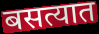
बसत्यात